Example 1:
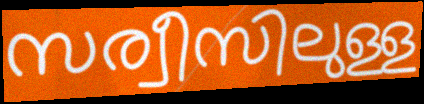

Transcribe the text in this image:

സര്വീസിലുള്ള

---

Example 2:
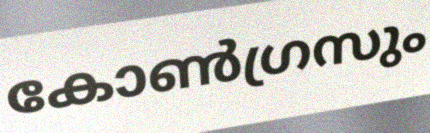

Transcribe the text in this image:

കോൺഗ്രസും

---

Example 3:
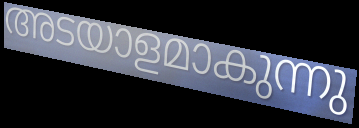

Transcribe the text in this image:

അടയാളമാകുന്നു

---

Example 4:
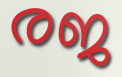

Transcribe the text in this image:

രജ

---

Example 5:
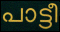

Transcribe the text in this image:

പാട്ടീ